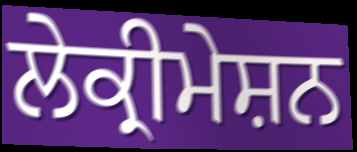
ਲੇਕ੍ਰੀਮੇਸ਼ਨ